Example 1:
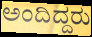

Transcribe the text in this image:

ಅಂದಿದ್ದರು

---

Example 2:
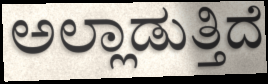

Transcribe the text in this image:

ಅಲ್ಲಾಡುತ್ತಿದೆ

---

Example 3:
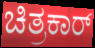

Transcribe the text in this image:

ಚಿತ್ರಕಾರ್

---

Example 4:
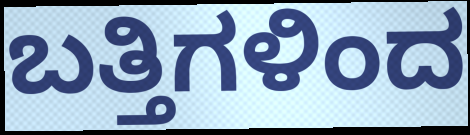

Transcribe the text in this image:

ಬತ್ತಿಗಳಿಂದ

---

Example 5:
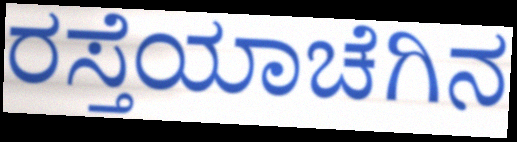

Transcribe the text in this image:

ರಸ್ತೆಯಾಚೆಗಿನ